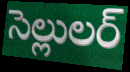
సెల్లులర్